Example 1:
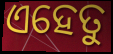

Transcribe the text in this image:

ଏହେତୁ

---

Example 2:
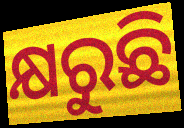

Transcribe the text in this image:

କ୍ଷରୁଛି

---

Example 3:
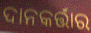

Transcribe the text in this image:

ଦାନକର୍ତ୍ତାର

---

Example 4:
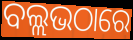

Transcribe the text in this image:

ବଲ୍ଲଭଠାରେ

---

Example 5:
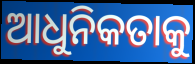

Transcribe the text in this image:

ଆଧୁନିକତାକୁ